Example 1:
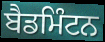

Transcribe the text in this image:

ਬੈਡਮਿੰਟਨ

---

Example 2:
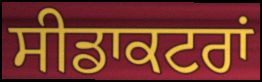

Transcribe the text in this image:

ਸੀਡਾਕਟਰਾਂ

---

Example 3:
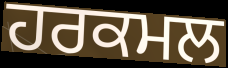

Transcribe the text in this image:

ਹਰਕਮਲ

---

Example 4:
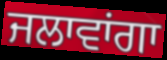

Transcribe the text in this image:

ਜਲਾਵਾਂਗਾ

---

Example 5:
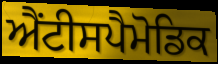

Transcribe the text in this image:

ਐਂਟੀਸਪੈਮੋਡਿਕ